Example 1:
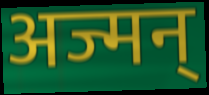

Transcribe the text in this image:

अज्मन्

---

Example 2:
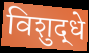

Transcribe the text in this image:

विशुद्धे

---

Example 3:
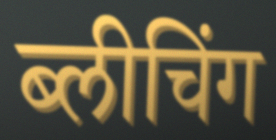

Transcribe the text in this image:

ब्लीचिंग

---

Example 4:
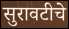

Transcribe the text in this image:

सुरावटीचे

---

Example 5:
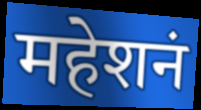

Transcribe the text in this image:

महेशनं